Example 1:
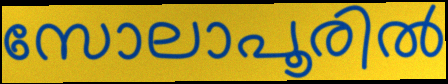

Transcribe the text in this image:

സോലാപൂരിൽ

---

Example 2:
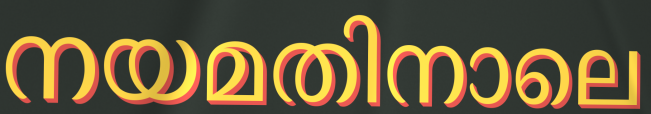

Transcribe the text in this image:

നയമതിനാലെ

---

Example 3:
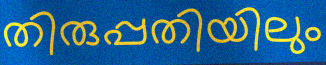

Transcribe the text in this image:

തിരുപ്പതിയിലും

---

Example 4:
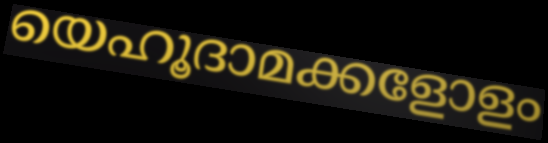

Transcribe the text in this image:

യെഹൂദാമക്കളോളം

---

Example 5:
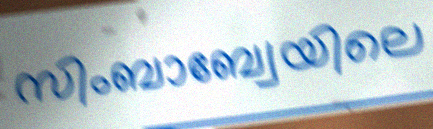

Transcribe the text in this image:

സിംബാബ്വേയിലെ